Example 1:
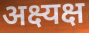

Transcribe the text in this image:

अक्ष्यक्ष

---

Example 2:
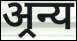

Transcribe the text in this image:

अ्रन्य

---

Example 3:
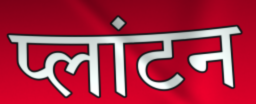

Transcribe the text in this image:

प्लांटन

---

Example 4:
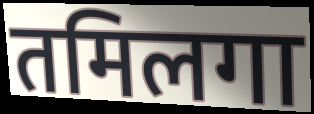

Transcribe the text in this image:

तमिलगा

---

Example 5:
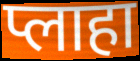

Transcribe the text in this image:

प्लाहा